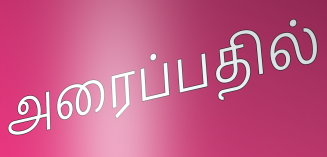
அரைப்பதில்